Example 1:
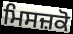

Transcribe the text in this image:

ਮਿਸਜ਼ਕੋ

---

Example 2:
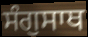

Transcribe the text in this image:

ਸੰਗੁਸਾਥ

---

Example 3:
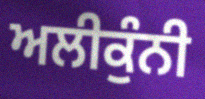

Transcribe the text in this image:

ਅਲੀਕੁੰਨੀ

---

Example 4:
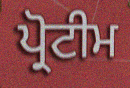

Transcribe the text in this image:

ਪ੍ਰੋਟੀਮ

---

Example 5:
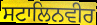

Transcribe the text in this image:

ਸਟਾਲਿਨਵੀਰ